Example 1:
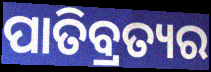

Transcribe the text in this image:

ପାତିବ୍ରତ୍ୟର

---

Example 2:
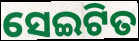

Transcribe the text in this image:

ସେଇଟିତ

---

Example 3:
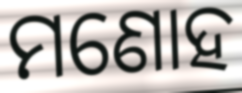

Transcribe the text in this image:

ମଣୋହ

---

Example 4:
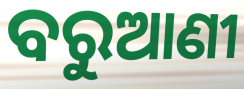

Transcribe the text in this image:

ବରୁଆଣୀ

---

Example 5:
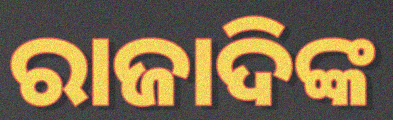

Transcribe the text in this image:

ରାଜାଦିଙ୍କ